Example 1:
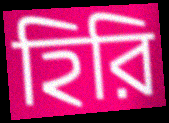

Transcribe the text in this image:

হিরি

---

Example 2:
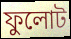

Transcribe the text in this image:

ফুলোট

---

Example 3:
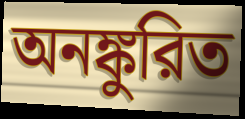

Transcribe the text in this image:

অনঙ্কুরিত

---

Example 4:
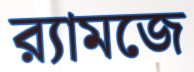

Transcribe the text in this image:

র‍্যামজে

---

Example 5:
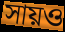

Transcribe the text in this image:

সায়ও